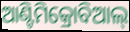
ଆଣ୍ଟିମିକ୍ରୋବିଆଲ୍